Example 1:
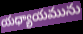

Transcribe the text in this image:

యధ్యాయమును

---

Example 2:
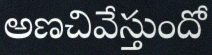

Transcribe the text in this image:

అణచివేస్తుందో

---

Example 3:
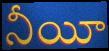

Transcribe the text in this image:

నీయీ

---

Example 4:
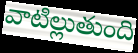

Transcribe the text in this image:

వాటిల్లుతుంది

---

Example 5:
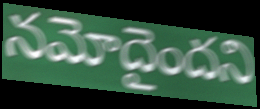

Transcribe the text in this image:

నమోదైందని